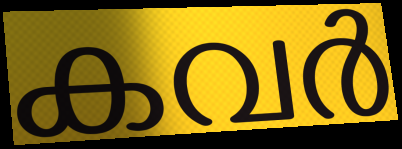
കവർ